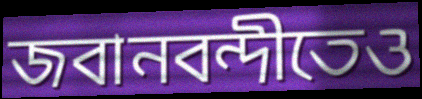
জবানবন্দীতেও